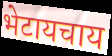
भेटायचाय